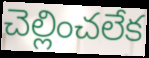
చెల్లించలేక